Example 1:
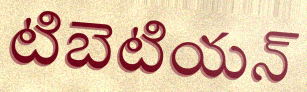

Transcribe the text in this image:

టిబెటియన్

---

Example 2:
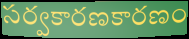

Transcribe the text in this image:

సర్వకారణకారణం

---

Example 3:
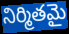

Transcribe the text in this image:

నిర్మితమై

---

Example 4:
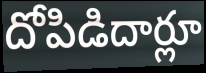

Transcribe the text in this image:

దోపిడిదార్లూ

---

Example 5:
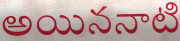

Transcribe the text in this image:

అయిననాటి